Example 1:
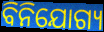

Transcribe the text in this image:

ବିନିଯୋଗ୍ୟ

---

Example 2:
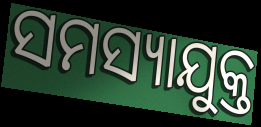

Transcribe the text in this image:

ସମସ୍ୟାଯୁକ୍ତ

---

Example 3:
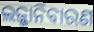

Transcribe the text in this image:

ଲଜ୍ଜାନିବାରଣ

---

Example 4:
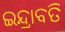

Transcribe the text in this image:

ଇନ୍ଦ୍ରାବତି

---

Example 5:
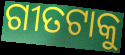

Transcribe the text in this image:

ଗୀତଟାକୁ